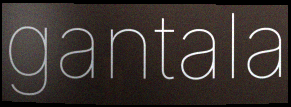
gantala